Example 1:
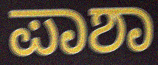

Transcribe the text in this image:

ಪಾಶಾ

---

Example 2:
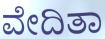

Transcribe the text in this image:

ವೇದಿತಾ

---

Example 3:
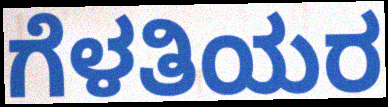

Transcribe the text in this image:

ಗೆಳತಿಯರ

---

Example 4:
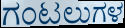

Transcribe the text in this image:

ಗಂಟಲುಗಳ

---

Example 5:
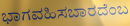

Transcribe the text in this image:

ಭಾಗವಹಿಸಬಾರದೆಂಬ